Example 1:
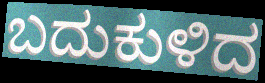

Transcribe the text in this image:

ಬದುಕುಳಿದ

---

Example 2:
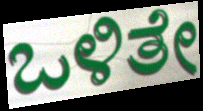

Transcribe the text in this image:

ಒಳಿತೇ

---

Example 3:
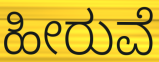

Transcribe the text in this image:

ಹೀರುವೆ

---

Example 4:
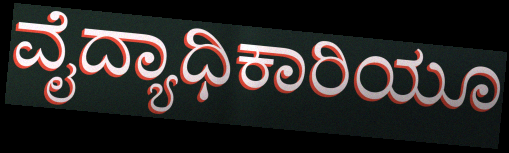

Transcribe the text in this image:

ವೈದ್ಯಾಧಿಕಾರಿಯೂ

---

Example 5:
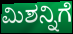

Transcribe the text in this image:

ಮಿಶನ್ನಿಗೆ